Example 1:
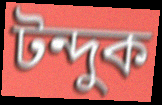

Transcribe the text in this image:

টন্দুক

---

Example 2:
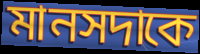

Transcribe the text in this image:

মানসদাকে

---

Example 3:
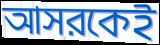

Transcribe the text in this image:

আসরকেই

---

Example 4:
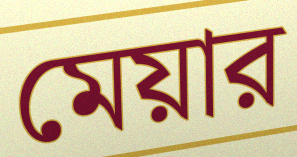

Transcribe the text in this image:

মেয়ার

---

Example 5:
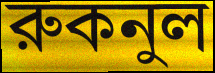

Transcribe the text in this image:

রুকনুল